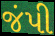
જંપી